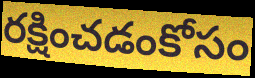
రక్షించడంకోసం